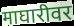
माघारीवर